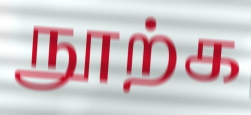
நூற்க